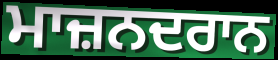
ਮਾਜ਼ਨਦਰਾਨ